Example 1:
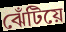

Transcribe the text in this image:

ঝেঁটিয়ে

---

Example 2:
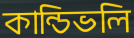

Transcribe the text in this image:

কান্ডিভলি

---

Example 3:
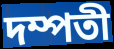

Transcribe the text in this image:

দম্পতী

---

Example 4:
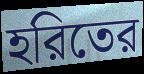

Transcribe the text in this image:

হরিতের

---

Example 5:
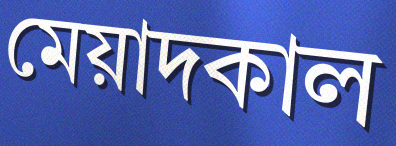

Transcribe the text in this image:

মেয়াদকাল